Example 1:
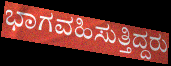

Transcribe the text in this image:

ಭಾಗವಹಿಸುತ್ತಿದ್ದರು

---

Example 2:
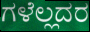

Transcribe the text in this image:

ಗಳೆಲ್ಲದರ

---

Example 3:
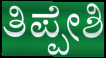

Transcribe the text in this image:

ತಿಪ್ಪೇಶಿ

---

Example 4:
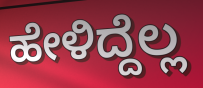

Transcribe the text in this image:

ಹೇಳಿದ್ದೆಲ್ಲ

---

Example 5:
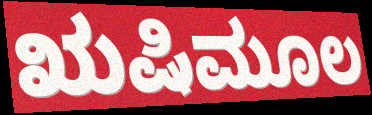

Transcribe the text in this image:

ಋಷಿಮೂಲ